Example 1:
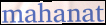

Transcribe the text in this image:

mahanat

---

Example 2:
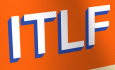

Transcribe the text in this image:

ITLF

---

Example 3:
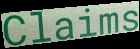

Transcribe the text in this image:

Claims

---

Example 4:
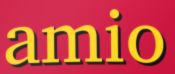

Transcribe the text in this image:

amio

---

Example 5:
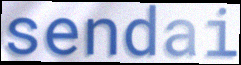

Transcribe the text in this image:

sendai